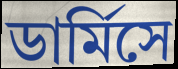
ডার্মিসে